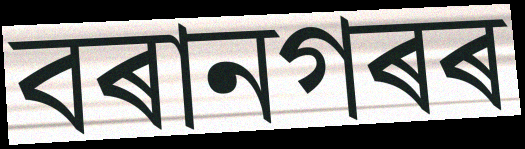
বৰানগৰৰ